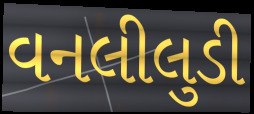
વનલીલુડી